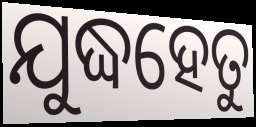
ଯୁଦ୍ଧହେତୁ